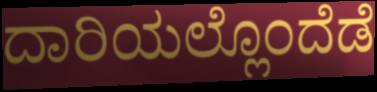
ದಾರಿಯಲ್ಲೊಂದೆಡೆ